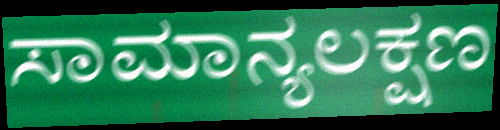
ಸಾಮಾನ್ಯಲಕ್ಷಣ